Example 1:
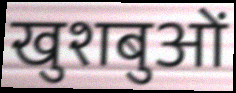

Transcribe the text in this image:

खुशबुओं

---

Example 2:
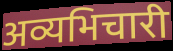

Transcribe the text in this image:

अव्यभिचारी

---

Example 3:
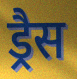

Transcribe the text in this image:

ड्रैस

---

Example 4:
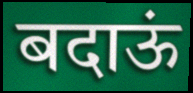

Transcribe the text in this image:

बदाऊं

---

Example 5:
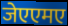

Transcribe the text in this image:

जेएएमए